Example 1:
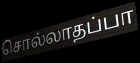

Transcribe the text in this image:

சொல்லாதப்பா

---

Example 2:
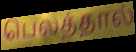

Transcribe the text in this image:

பெலத்தால்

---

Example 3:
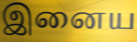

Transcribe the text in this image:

இனைய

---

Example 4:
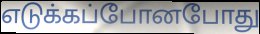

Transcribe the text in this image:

எடுக்கப்போனபோது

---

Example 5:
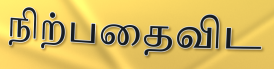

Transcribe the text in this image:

நிற்பதைவிட